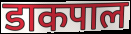
डाकपाल